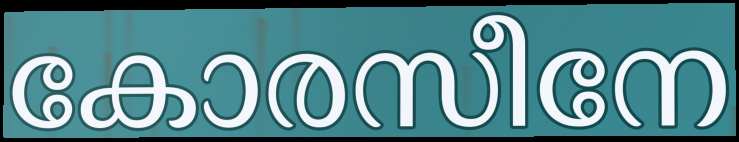
കോരസീനേ